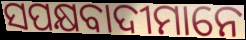
ସପକ୍ଷବାଦୀମାନେ